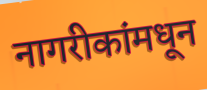
नागरीकांमधून